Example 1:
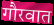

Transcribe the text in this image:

गौरवात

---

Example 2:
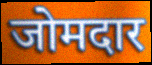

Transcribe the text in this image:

जोमदार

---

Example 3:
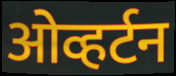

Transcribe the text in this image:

ओव्हर्टन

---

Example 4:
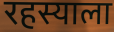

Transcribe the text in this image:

रहस्याला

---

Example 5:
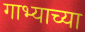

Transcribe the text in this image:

गाभ्याच्या